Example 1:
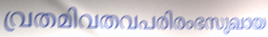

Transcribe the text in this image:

വ്രതമിവതവപരിരംഭസുഖായ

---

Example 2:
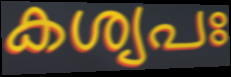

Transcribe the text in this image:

കശ്യപഃ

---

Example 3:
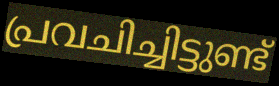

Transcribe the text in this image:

പ്രവചിച്ചിട്ടുണ്ട്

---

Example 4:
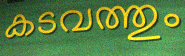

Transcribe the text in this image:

കടവത്തും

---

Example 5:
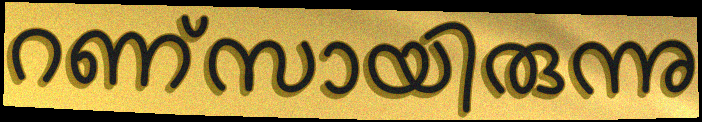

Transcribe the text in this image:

റണ്സായിരുന്നു